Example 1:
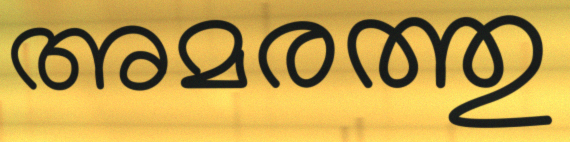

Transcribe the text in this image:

അമരത്തു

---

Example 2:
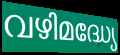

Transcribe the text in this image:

വഴിമദ്ധ്യേ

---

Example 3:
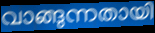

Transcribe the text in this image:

വാങ്ങുന്നതായി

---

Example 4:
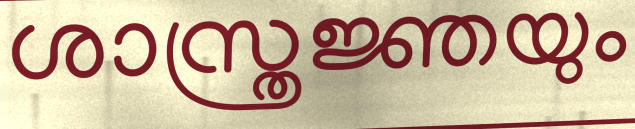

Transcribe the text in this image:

ശാസ്ത്രജ്ഞയും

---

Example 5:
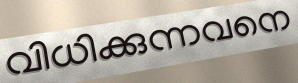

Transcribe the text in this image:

വിധിക്കുന്നവനെ